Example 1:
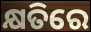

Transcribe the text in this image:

କ୍ଷତିରେ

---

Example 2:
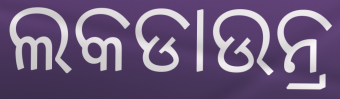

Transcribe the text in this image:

ଲକଡାଉନ୍ର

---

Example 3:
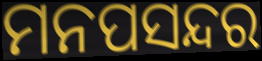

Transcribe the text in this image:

ମନପସନ୍ଦର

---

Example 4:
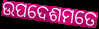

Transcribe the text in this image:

ଉପଦେଶମତେ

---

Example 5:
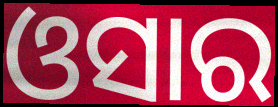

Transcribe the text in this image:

ଓସାର